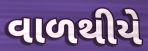
વાળથીયે